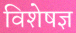
विशेषज्ञ